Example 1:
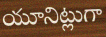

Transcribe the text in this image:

యూనిట్లుగా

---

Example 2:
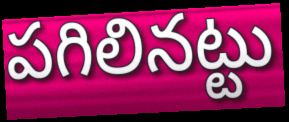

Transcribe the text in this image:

పగిలినట్టు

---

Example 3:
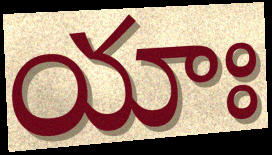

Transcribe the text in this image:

యాః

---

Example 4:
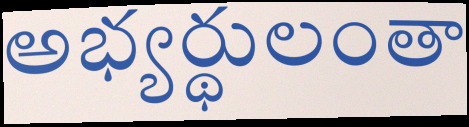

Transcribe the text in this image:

అభ్యర్థులంతా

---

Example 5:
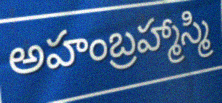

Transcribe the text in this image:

అహంబ్రహ్మాస్మి